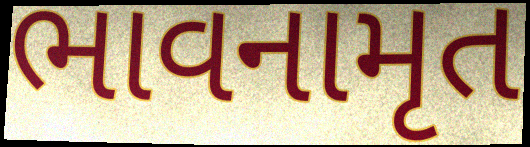
ભાવનામૃત